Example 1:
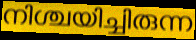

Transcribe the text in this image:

നിശ്ചയിച്ചിരുന്ന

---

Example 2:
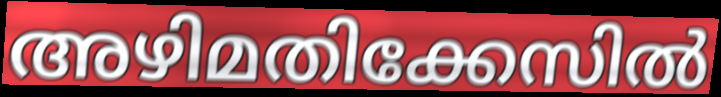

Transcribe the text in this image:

അഴിമതിക്കേസിൽ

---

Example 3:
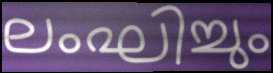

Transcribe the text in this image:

ലംഘിച്ചും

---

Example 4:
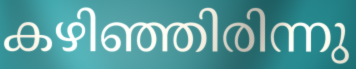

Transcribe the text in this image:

കഴിഞ്ഞിരിന്നു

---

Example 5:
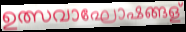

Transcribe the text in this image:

ഉത്സവാഘോഷങ്ങള്